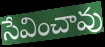
సేవించావు